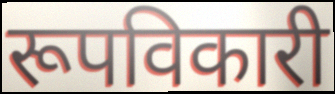
रूपविकारी